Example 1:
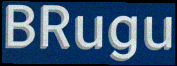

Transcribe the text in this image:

BRugu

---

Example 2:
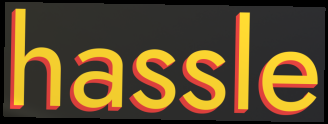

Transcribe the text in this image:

hassle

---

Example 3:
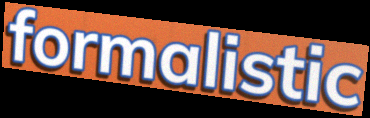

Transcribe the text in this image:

formalistic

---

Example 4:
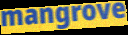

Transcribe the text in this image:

mangrove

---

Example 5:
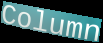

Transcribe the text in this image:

Column